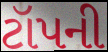
ટૉપની